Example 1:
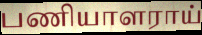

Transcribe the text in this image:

பணியாளராய்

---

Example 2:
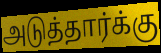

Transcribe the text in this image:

அடுத்தார்க்கு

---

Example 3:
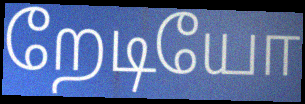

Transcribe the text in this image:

றேடியோ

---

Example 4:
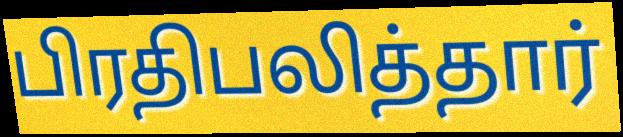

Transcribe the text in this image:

பிரதிபலித்தார்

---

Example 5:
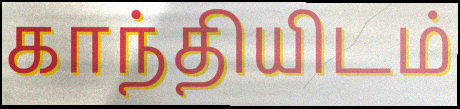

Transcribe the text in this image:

காந்தியிடம்